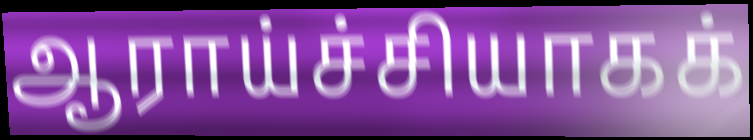
ஆராய்ச்சியாகக்